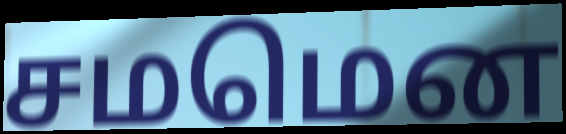
சமமென